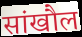
सांखौल